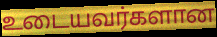
உடையவர்களான